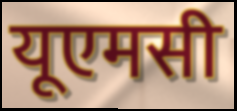
यूएमसी